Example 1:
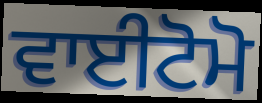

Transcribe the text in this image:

ਵਾਈਟੋਮੋ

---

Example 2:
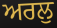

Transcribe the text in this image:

ਅਰਲੁ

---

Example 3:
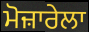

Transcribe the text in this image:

ਮੋਜ਼ਾਰੇਲਾ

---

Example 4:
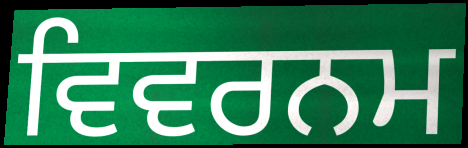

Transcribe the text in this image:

ਵਿਵਰਨਮ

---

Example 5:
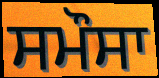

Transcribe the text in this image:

ਸਮੌਸਾ